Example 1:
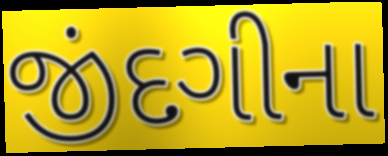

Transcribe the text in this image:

જીંદગીના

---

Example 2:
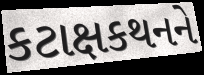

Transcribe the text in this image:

કટાક્ષકથનને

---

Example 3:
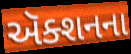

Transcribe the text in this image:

ઍક્શનના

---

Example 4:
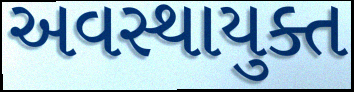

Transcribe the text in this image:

અવસ્થાયુક્ત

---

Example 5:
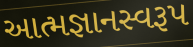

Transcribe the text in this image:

આત્મજ્ઞાનસ્વરૂપ